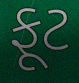
ફૂટ